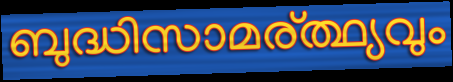
ബുദ്ധിസാമര്ത്ഥ്യവും